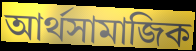
আৰ্থসামাজিক